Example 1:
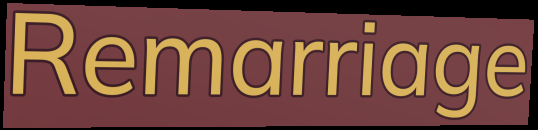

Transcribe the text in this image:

Remarriage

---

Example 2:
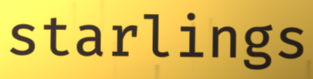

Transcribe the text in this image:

starlings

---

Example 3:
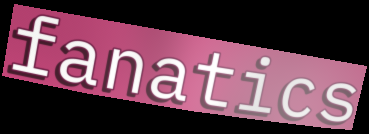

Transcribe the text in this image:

fanatics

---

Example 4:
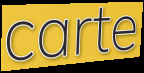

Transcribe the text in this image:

carte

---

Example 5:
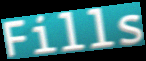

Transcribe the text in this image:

Fills